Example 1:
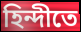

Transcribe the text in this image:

হিন্দীতে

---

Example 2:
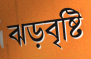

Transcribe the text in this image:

ঝড়বৃষ্টি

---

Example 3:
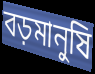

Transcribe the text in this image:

বড়মানুষি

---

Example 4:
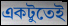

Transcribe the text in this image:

একটুতেই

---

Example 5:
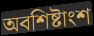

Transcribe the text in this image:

অবশিষ্টাংশ